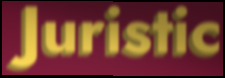
Juristic